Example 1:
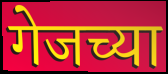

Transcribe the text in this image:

गेजच्या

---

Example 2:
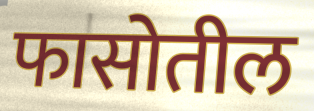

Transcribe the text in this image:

फासोतील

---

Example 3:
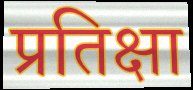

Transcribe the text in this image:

प्रतिक्षा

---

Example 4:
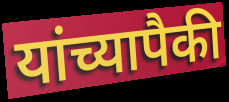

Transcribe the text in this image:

यांच्यापैकी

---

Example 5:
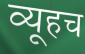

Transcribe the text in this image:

व्यूहच